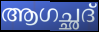
ആഗച്ഛദ്